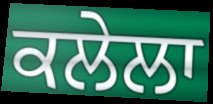
ਕਲੇਲਾ